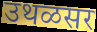
उथळसर